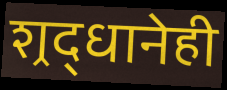
श्रद्धानेही